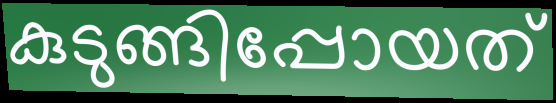
കുടുങ്ങിപ്പോയത്